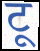
टू